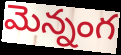
మెన్నంగ